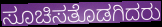
ಸೂಚಿಸತೊಡಗಿದರು